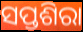
ସପ୍ତଶିରା